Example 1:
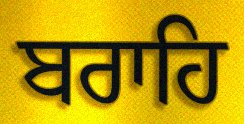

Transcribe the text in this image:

ਬਰਾਹਿ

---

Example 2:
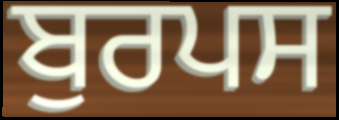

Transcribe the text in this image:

ਬੁਰਪਸ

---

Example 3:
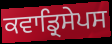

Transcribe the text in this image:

ਕਵਾਡ੍ਰਿਸੇਪਸ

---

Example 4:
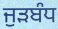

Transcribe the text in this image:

ਜੁੜਬੰਧ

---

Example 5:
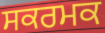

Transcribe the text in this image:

ਸਕਰਮਕ